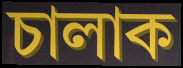
চালাক